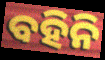
ବହିନି